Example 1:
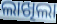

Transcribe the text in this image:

ଲାଖିଲା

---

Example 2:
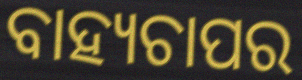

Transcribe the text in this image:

ବାହ୍ୟଚାପର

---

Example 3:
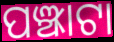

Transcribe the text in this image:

ପଞ୍ଝାଟା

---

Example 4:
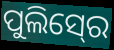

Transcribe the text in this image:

ପୁଲିସ୍‍ରେ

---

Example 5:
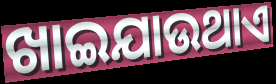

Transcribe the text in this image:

ଖାଇଯାଉଥାଏ